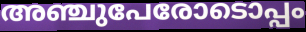
അഞ്ചുപേരോടൊപ്പം